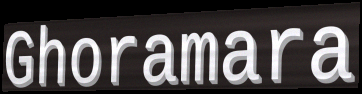
Ghoramara